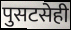
पुसटसेही